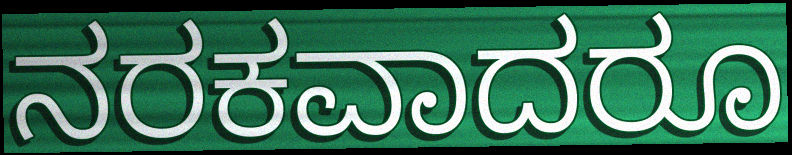
ನರಕವಾದರೂ